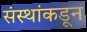
संस्थांकडून